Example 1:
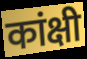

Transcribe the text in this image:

कांक्षी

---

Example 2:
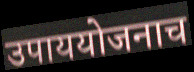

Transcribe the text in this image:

उपाययोजनाच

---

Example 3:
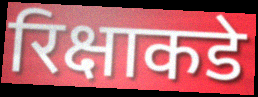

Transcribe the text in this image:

रिक्षाकडे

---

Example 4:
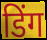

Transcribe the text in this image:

डिंग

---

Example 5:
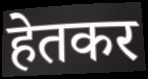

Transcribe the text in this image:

हेतकर